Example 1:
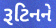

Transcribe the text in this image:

રૂટિનને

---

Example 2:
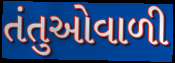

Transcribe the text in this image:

તંતુઓવાળી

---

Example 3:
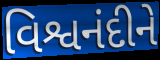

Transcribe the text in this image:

વિશ્વનંદીને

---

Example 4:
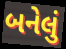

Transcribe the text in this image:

બનેલું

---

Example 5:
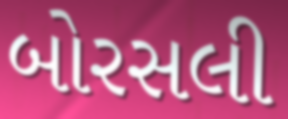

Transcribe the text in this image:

બોરસલી